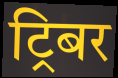
ट्रिबर